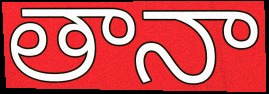
తానా